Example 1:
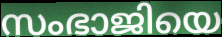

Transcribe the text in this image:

സംഭാജിയെ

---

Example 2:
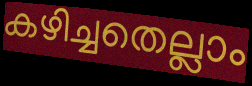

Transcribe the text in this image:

കഴിച്ചതെല്ലാം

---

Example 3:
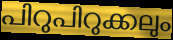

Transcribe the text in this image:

പിറുപിറുക്കലും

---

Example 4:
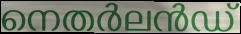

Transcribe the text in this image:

നെതർലൻഡ്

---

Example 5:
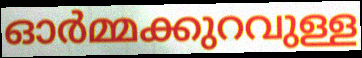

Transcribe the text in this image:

ഓർമ്മക്കുറവുള്ള